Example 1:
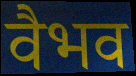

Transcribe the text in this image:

वैभव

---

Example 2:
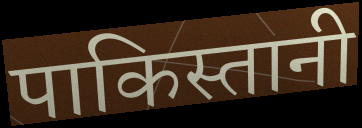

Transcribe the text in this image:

पाकिस्तानी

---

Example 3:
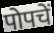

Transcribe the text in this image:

पोपचें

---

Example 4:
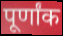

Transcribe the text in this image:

पूर्णांक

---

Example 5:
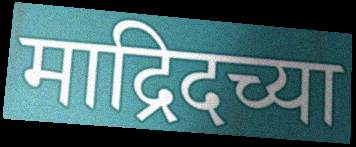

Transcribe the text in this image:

माद्रिदच्या